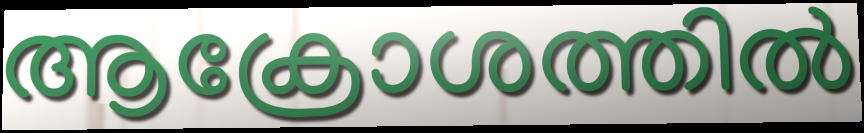
ആക്രോശത്തിൽ